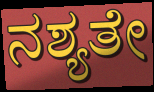
ನಶ್ಯತೇ